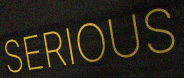
SERIOUS